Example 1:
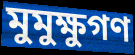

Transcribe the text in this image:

মুমুক্ষুগণ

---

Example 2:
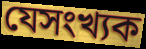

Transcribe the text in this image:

যেসংখ্যক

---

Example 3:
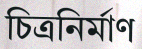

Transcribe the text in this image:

চিত্রনির্মাণ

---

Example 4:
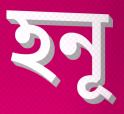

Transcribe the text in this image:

হনূ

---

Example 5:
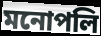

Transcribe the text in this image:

মনোপলি